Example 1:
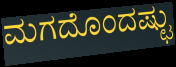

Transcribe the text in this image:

ಮಗದೊಂದಷ್ಟು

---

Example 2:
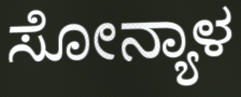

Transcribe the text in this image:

ಸೋನ್ಯಾಳ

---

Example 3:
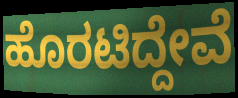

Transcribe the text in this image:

ಹೊರಟಿದ್ದೇವೆ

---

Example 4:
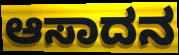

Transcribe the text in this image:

ಆಸಾದನ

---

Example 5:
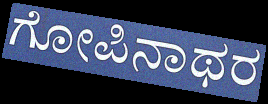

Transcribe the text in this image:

ಗೋಪಿನಾಥರ